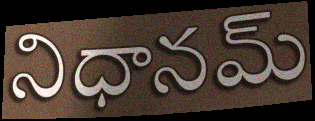
నిధానమ్